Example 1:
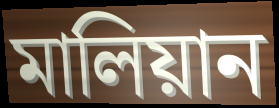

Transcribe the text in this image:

মালিয়ান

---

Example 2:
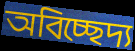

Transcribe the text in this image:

অবিচ্ছেদ্য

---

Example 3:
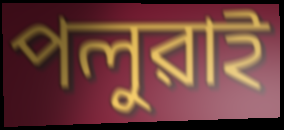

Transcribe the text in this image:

পলুৱাই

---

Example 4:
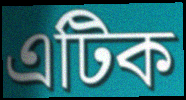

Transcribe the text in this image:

এটিক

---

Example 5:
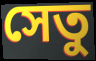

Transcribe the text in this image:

সেতু